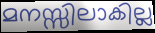
മനസ്സിലാകില്ല